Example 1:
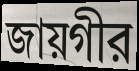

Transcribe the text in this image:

জায়গীর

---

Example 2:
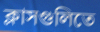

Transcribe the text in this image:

ক্লাসগুলিতে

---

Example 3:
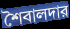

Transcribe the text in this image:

শৈবালদার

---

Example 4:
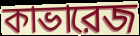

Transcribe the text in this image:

কাভারেজ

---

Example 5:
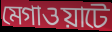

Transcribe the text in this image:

মেগাওয়াটে